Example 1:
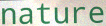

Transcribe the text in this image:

nature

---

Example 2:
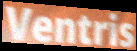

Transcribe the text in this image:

Ventris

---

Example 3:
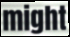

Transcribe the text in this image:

might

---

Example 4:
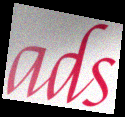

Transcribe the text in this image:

ads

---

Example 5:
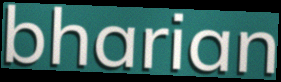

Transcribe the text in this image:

bharian